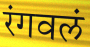
रंगवलं